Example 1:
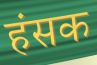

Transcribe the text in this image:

हंसक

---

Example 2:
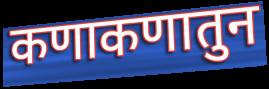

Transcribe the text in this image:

कणाकणातुन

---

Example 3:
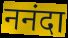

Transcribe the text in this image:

ननंदा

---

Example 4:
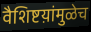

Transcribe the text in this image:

वैशिष्टय़ांमुळेच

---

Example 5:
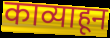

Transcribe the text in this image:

काव्याहून